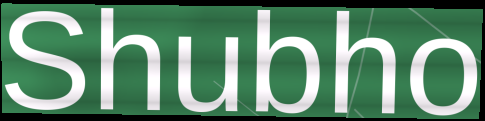
Shubho